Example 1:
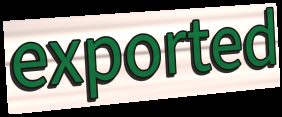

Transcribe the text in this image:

exported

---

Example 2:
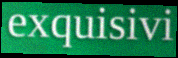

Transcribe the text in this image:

exquisivi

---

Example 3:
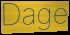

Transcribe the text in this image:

Dage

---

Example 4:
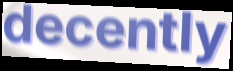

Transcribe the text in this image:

decently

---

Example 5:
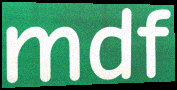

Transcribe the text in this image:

mdf